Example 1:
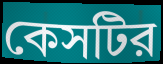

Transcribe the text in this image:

কেসটির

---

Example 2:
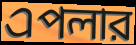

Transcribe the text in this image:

এপলার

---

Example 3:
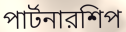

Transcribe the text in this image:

পার্টনারশিপ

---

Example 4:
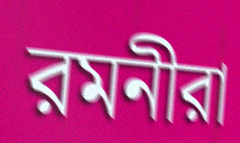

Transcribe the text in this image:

রমনীরা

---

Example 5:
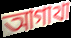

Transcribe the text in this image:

আগাথা